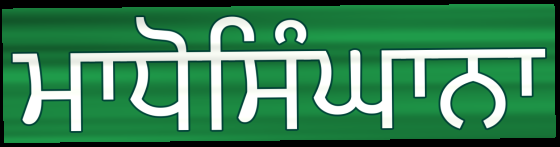
ਮਾਧੋਸਿੰਘਾਨਾ